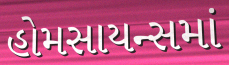
હોમસાયન્સમાં